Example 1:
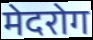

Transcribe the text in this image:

मेदरोग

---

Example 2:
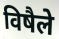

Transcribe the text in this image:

विषैले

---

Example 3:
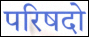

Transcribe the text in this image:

परिषदो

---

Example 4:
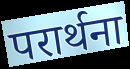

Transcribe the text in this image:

परार्थना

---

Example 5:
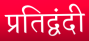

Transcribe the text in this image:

प्रतिद्वंदी